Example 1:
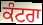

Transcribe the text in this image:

ਕੰਟਰਾ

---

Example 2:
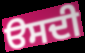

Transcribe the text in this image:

ੳਸਦੀ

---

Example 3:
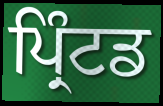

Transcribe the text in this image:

ਪ੍ਰਿੰਟਡ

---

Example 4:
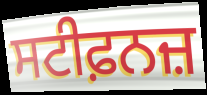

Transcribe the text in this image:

ਸਟੀਫ਼ਨਜ਼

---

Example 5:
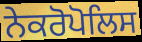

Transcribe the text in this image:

ਨੇਕਰੋਪੋਲਿਸ